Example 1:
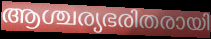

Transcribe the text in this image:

ആശ്ചര്യഭരിതരായി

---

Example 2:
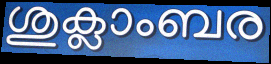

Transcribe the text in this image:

ശുക്ലാംബര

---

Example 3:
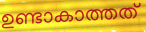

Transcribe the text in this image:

ഉണ്ടാകാത്തത്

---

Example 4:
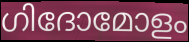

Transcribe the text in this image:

ഗിദോമോളം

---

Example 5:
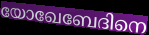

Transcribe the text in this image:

യോഖേബേദിനെ